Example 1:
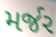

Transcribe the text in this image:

મર્જર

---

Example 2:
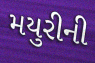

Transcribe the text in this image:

મયુરીની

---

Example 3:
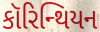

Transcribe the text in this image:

કૉરિન્થિયન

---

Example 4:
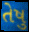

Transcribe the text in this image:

તેષુ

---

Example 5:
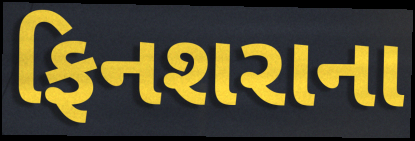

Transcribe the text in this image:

ફિનશરાના